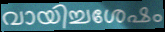
വായിച്ചശേഷം